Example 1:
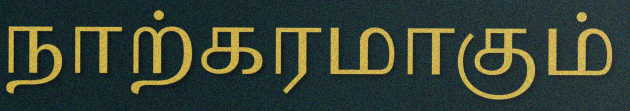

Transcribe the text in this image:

நாற்கரமாகும்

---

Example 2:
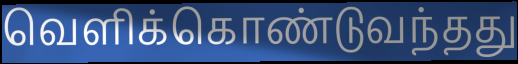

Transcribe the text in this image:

வெளிக்கொண்டுவந்தது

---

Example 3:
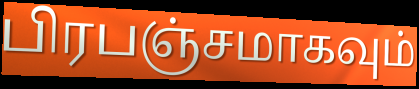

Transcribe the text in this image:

பிரபஞ்சமாகவும்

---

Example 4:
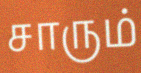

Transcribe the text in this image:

சாரும்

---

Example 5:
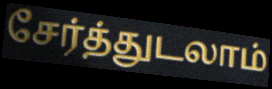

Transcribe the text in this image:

சேர்த்துடலாம்